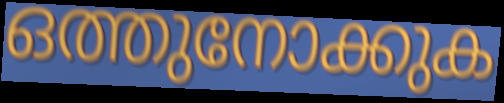
ഒത്തുനോക്കുക